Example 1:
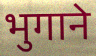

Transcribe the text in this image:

भुगाने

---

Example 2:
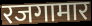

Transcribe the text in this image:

रजगामार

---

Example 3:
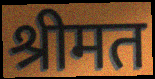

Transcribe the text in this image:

श्रीमत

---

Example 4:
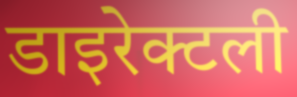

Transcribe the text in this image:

डाइरेक्टली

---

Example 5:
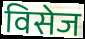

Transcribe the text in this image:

विसेज